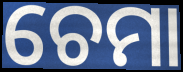
ଚେମା